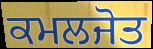
ਕਮਲਜੋਤ